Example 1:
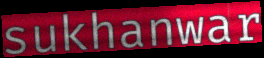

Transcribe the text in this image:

sukhanwar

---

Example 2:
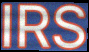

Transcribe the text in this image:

IRS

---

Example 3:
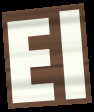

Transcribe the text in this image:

El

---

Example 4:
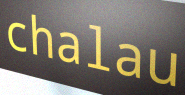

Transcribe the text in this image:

chalau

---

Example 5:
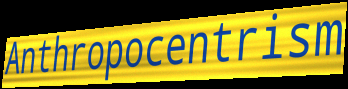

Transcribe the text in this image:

Anthropocentrism